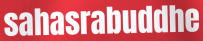
sahasrabuddhe